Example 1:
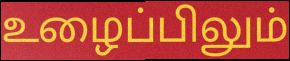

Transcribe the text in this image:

உழைப்பிலும்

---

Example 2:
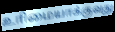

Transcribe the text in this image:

உரிமையாக்குவது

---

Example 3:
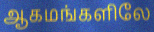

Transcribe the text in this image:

ஆகமங்களிலே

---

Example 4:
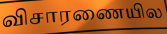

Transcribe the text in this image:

விசாரணையில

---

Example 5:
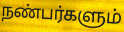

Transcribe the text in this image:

நண்பர்களும்